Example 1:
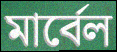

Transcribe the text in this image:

মার্বেল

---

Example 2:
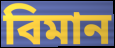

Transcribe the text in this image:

বিমান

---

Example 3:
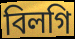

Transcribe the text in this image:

বিলগি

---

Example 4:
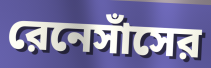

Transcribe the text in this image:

রেনেসাঁসের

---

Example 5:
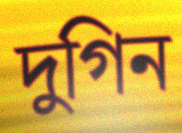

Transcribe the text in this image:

দুগিন